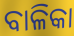
ବାଳିକା